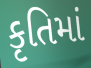
કૃતિમાં